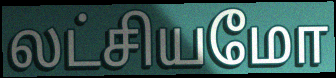
லட்சியமோ